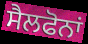
ਸੈਲਫੋਨਾਂ